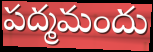
పద్మమందు